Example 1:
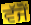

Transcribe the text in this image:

ਵੱਜੋਂ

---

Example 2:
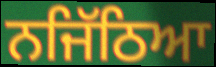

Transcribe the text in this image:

ਨਜਿੱਠਿਆ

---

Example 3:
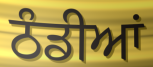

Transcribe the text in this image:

ਠੰਡੀਆਂ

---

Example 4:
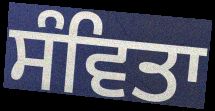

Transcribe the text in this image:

ਸੰਵਿਤਾ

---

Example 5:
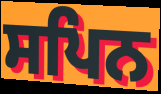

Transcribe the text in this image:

ਸਪਿਨ